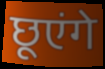
छूएंगे